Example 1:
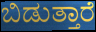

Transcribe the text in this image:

ಬಿಡುತ್ತಾರೆ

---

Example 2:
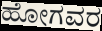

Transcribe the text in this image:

ಹೋಗವರ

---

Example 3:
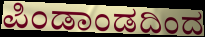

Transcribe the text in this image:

ಪಿಂಡಾಂಡದಿಂದ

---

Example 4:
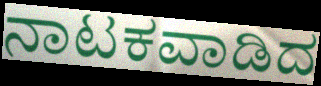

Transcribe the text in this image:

ನಾಟಕವಾಡಿದ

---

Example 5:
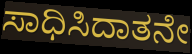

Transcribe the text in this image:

ಸಾಧಿಸಿದಾತನೇ